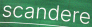
scandere